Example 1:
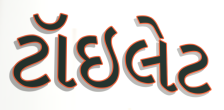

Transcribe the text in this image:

ટૉઇલેટ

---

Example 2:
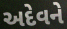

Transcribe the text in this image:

અદેવને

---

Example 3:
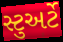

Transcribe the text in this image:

સ્ટુઅર્ટે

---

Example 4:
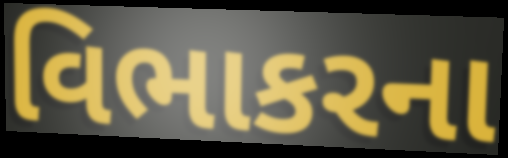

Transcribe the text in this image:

વિભાકરના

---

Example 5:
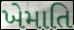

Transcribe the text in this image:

ખેમાતિ